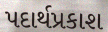
પદાર્થપ્રકાશ